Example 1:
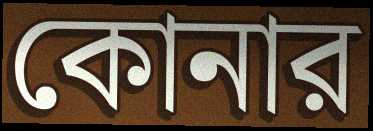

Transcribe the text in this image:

কোনার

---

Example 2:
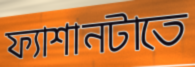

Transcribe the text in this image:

ফ্যাশানটাতে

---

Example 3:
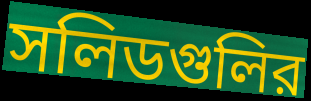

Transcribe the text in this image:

সলিডগুলির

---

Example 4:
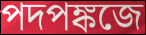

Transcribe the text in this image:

পদপঙ্কজে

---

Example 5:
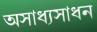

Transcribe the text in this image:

অসাধ্যসাধন